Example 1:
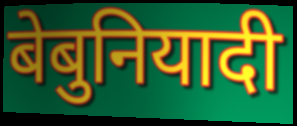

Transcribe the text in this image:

बेबुनियादी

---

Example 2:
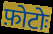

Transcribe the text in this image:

फ़ोटोः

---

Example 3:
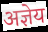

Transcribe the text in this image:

अज्ञेय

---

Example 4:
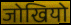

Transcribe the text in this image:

जोखियो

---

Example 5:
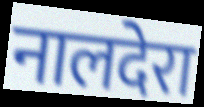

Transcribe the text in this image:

नालदेरा